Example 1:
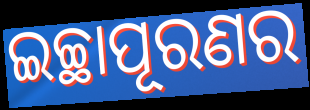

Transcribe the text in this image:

ଇଚ୍ଛାପୂରଣର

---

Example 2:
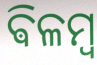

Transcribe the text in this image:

ଵିଳମ୍ବ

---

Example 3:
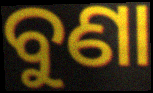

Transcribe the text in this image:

ବୁଣା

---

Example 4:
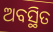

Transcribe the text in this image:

ଅବସ୍ଥିତ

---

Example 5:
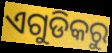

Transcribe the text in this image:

ଏଗୁଡିକରୁ